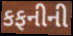
કફનીની